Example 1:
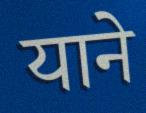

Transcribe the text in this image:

याने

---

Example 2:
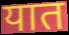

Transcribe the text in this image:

यात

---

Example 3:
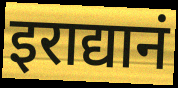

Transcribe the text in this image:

इराद्यानं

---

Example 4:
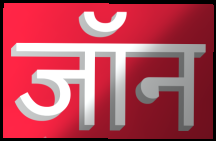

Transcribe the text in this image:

जॉन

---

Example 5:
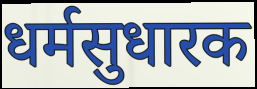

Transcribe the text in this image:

धर्मसुधारक